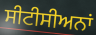
ਸੀਟੀਸੀਅਨਾਂ